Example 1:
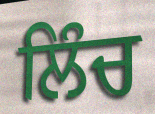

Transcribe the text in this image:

ਲਿੰਚ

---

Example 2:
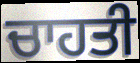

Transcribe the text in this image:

ਚਾਹਤੀ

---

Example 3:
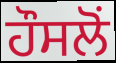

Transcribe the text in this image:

ਹੌਸਲੋਂ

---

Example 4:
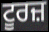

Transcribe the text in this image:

ਟੂਰਜ਼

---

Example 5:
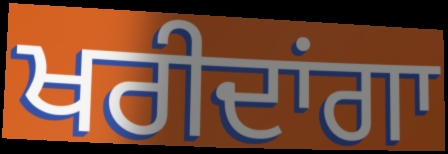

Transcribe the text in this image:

ਖਰੀਦਾਂਗਾ